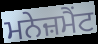
ਮਨੇਜ਼ਮੈਂਟ